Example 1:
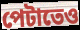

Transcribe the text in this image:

পেটাতেও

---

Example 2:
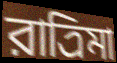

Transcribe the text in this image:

রাত্রিমা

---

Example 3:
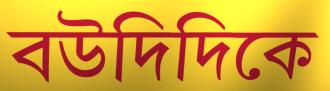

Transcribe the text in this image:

বউদিদিকে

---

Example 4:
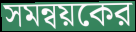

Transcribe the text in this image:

সমন্বয়কের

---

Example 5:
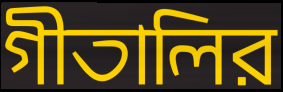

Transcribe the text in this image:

গীতালির